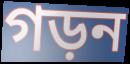
গড়ন